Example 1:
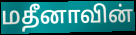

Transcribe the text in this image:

மதீனாவின்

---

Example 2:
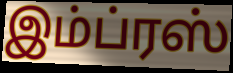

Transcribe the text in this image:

இம்ப்ரஸ்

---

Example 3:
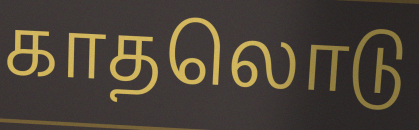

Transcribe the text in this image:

காதலொடு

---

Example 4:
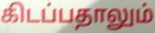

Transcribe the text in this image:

கிடப்பதாலும்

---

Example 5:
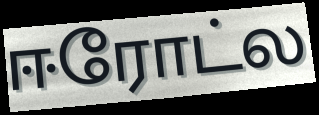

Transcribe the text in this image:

ஈரோட்ல